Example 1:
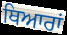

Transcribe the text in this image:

ਥਿਆਰਾਂ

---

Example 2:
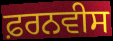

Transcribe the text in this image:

ਫ਼ਰਨਵੀਸ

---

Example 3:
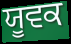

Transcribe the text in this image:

ਯੂਵਕ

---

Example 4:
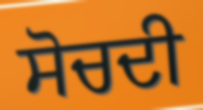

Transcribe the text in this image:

ਸੋਚਦੀ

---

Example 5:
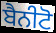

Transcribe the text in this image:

ਬੈਨੀਟੋ